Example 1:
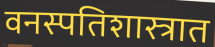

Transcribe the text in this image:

वनस्पतिशास्त्रात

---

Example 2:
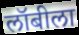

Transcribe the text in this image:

लॉबीला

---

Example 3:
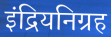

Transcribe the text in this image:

इंद्रियनिग्रह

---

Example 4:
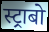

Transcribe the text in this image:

स्ट्राबो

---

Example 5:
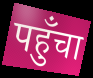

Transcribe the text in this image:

पहुँचा